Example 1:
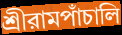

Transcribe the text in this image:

শ্রীরামপাঁচালি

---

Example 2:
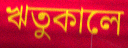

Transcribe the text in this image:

ঋতুকালে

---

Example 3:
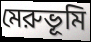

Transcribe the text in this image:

মেরুভূমি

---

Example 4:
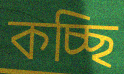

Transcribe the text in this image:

কচ্ছি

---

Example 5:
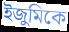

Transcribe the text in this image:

ইজুমিকে